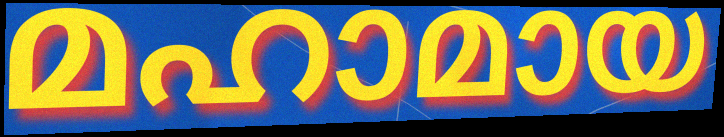
മഹാമായ